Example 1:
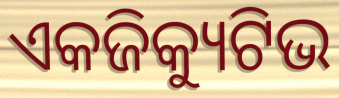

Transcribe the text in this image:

ଏକଜିକ୍ୟୁଟିଭ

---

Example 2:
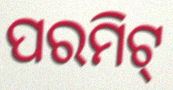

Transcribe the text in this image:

ପରମିଟ୍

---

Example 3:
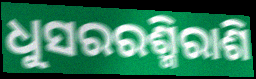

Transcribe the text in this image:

ଧୁସରରଶ୍ମିରାଶି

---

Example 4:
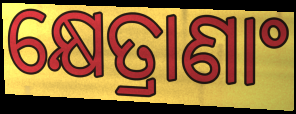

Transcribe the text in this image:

କ୍ଷେତ୍ରାଣାଂ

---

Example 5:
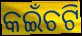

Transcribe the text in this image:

କଇଁଚଟି